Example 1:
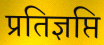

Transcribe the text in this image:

प्रतिज्ञप्ति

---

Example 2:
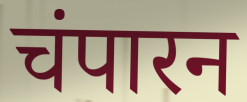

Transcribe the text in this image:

चंपारन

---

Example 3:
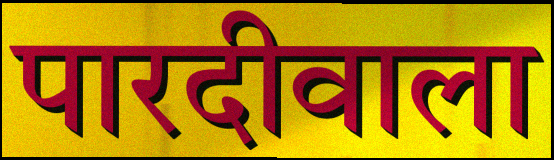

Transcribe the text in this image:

पारदीवाला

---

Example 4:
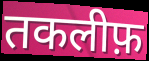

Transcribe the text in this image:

तकलीफ़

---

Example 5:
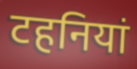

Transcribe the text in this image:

टहनियां